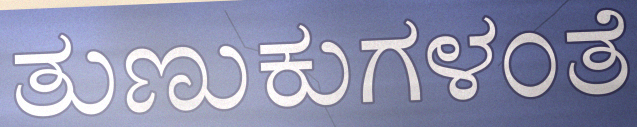
ತುಣುಕುಗಳಂತೆ